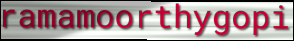
ramamoorthygopi